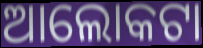
ଆଲୋକଟା